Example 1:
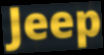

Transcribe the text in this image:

Jeep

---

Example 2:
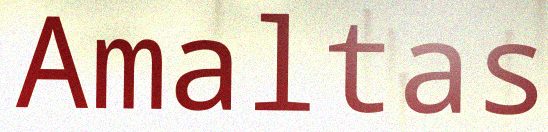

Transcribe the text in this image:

Amaltas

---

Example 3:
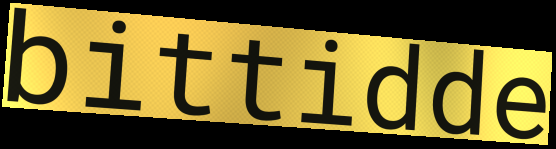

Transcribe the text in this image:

bittidde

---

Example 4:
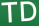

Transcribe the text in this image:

TD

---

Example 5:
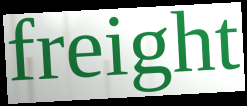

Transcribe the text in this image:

freight